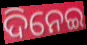
ଦିନେଇ